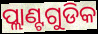
ପ୍ଲାଣ୍ଟଗୁଡିକ